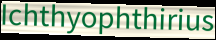
Ichthyophthirius